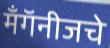
मँगॅनीजचे